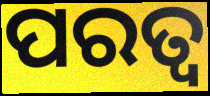
ପରତ୍ୱ